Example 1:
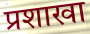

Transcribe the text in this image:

प्रशाखा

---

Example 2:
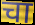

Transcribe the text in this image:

चा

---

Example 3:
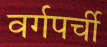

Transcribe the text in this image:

वर्गपर्ची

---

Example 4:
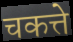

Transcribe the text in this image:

चकत्ते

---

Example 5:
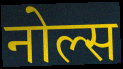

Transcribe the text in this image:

नोल्स